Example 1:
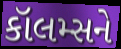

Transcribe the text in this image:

કૉલમ્સને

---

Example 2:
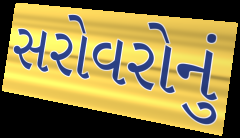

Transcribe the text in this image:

સરોવરોનું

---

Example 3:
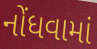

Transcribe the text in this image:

નોંધવામાં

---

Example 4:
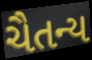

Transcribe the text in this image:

ચૈતન્ય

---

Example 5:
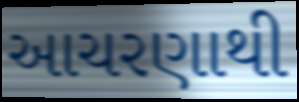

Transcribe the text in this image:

આચરણાથી